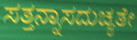
ಸತ್ತನ್ನಾಸದುಚ್ಯತೇ